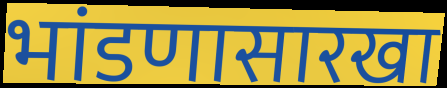
भांडणासारखा